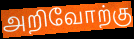
அறிவோற்கு